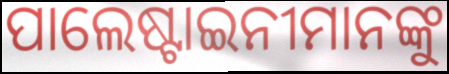
ପାଲେଷ୍ଟାଇନୀମାନଙ୍କୁ